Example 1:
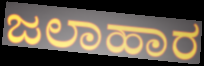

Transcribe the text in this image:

ಜಲಾಹಾರ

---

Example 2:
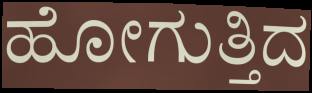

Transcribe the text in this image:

ಹೋಗುತ್ತಿದ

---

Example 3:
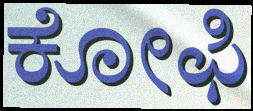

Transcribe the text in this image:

ಕೋಫಿ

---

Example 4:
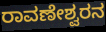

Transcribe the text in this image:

ರಾವಣೇಶ್ವರನ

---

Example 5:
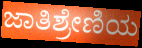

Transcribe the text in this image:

ಜಾತಿಶ್ರೇಣಿಯ